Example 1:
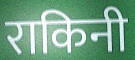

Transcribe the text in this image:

राकिनी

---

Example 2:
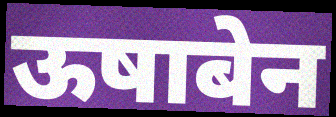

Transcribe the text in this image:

ऊषाबेन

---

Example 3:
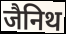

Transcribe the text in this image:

जैनिथ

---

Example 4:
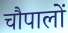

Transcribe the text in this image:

चौपालों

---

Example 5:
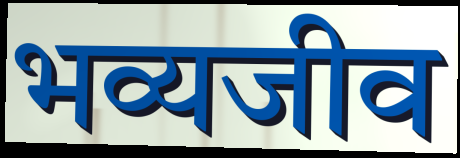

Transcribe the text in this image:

भव्यजीव